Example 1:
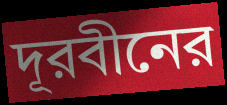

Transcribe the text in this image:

দূরবীনের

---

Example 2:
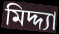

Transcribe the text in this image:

মিদ্দ্যা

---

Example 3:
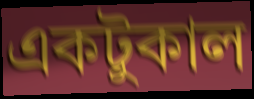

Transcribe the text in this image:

একটুকাল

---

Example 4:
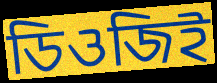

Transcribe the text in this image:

ডিওজিই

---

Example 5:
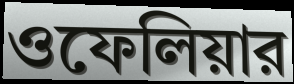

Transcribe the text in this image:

ওফেলিয়ার